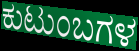
ಕುಟುಂಬಗಳ